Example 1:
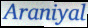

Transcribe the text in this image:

Araniyal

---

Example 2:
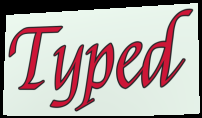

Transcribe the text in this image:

Typed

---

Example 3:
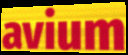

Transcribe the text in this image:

avium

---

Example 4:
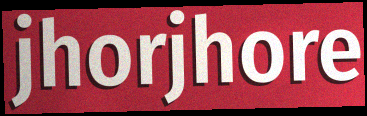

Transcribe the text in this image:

jhorjhore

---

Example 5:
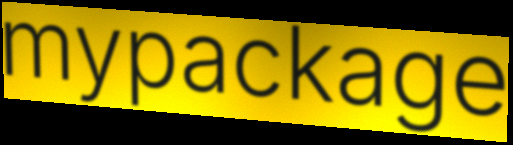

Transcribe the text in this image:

mypackage